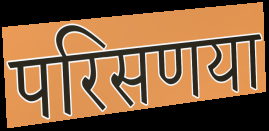
परिसणया